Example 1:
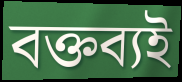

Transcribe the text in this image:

বক্তব্যই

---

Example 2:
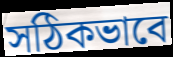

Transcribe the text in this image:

সঠিকভাবে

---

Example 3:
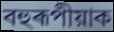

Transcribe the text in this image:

বহুৰূপীয়াক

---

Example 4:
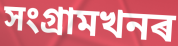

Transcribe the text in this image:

সংগ্ৰামখনৰ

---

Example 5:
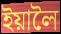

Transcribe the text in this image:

ইয়ালৈ